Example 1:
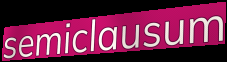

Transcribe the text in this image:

semiclausum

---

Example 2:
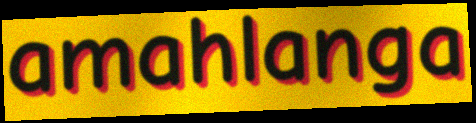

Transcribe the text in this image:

amahlanga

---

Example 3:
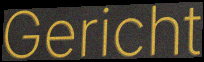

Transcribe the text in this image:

Gericht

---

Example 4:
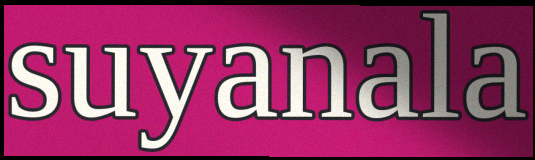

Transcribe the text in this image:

suyanala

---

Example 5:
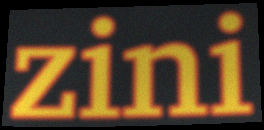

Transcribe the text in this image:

zini